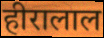
हीरालाल